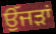
ਉੱਜੜਾਂ